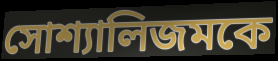
সোশ্যালিজমকে